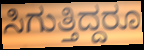
ಸಿಗುತ್ತಿದ್ದರೂ